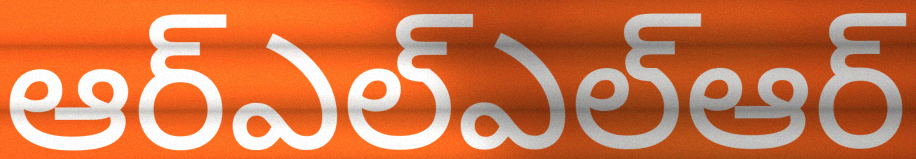
ఆర్ఎల్ఎల్ఆర్